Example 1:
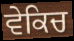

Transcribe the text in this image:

ਵੇਕਿਚ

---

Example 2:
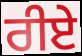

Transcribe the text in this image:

ਰੀਏ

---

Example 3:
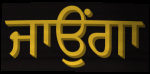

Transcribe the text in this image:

ਜਾਉਂਗਾ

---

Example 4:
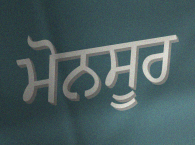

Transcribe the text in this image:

ਮੋਨਸੂਰ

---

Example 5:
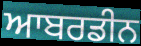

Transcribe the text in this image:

ਆਬਰਡੀਨ